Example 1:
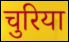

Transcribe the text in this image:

चुरिया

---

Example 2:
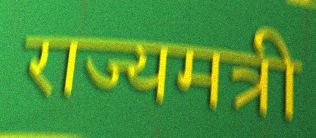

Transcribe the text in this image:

राज्यमत्री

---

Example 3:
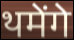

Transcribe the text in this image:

थमेंगे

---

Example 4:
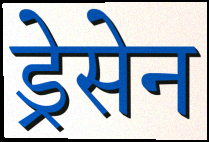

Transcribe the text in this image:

ड्रेसेन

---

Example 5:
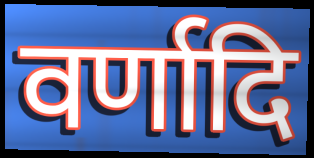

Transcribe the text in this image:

वर्णादि